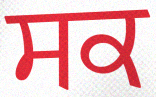
ਸਕ